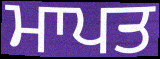
ਮਾਪਤ